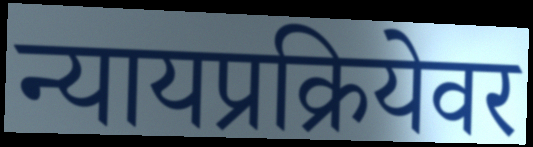
न्यायप्रक्रियेवर